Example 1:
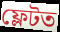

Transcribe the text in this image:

ফ্লেটত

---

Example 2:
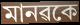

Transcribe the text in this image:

মানৱকে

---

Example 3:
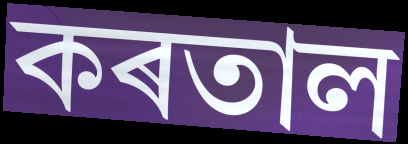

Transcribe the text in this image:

কৰতাল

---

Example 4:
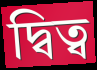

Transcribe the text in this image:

দ্বিত্ব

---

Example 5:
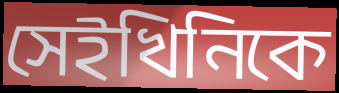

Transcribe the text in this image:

সেইখিনিকে